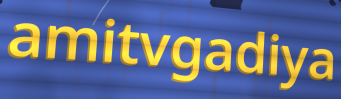
amitvgadiya